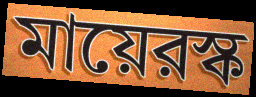
মায়েরস্ক